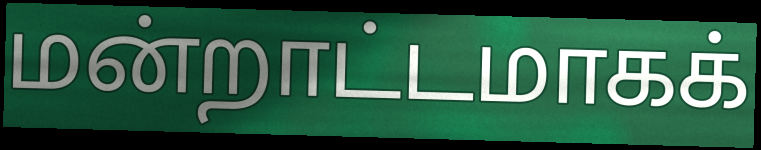
மன்றாட்டமாகக்